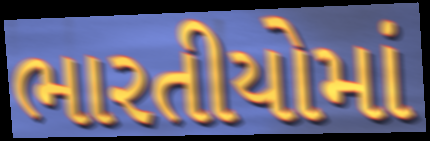
ભારતીયોમાં